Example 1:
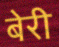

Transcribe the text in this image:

बेरी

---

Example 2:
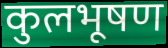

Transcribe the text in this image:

कुलभूषण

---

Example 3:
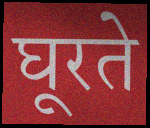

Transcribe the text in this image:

घूरते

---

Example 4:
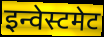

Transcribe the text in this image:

इन्वेस्टमेट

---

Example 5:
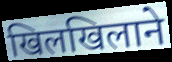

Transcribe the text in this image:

खिलखिलाने